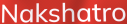
Nakshatro